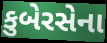
કુબેરસેના